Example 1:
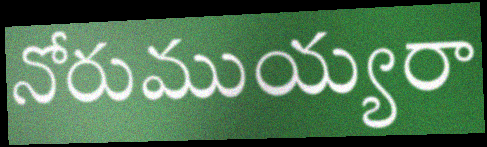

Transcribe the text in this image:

నోరుముయ్యరా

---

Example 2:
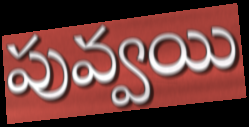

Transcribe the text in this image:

పువ్వయి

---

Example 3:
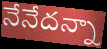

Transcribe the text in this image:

నేనేదన్నా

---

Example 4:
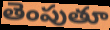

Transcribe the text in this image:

తెంపుతూ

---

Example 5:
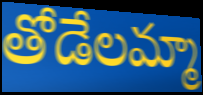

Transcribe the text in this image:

తోడేలమ్మా